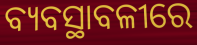
ବ୍ୟବସ୍ଥାବଳୀରେ